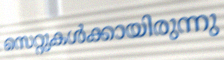
സെറ്റുകൾക്കായിരുന്നു